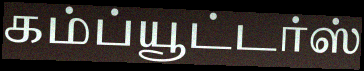
கம்ப்யூட்டர்ஸ்